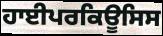
ਹਾਈਪਰਕਿਊਸਿਸ